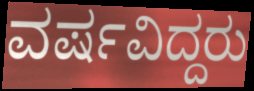
ವರ್ಷವಿದ್ದರು